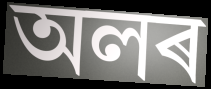
অলৰ